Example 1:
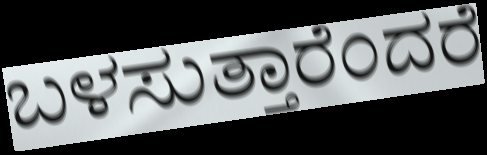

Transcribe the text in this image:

ಬಳಸುತ್ತಾರೆಂದರೆ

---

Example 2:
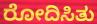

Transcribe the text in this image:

ರೋದಿಸಿತು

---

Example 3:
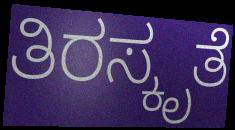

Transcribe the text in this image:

ತಿರಸ್ಕೃತೆ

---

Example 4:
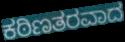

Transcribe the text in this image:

ಕಠಿಣತರವಾದ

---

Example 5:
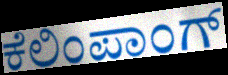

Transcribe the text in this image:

ಕೆಲಿಂಪಾಂಗ್